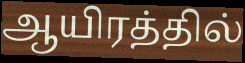
ஆயிரத்தில்